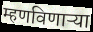
म्हणविणाऱ्या